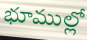
భూముల్లో